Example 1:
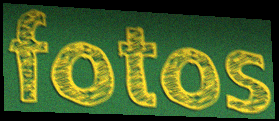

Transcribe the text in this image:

fotos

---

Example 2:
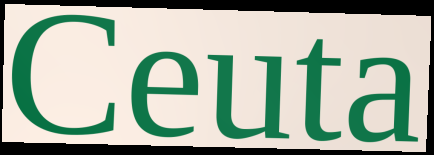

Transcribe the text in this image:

Ceuta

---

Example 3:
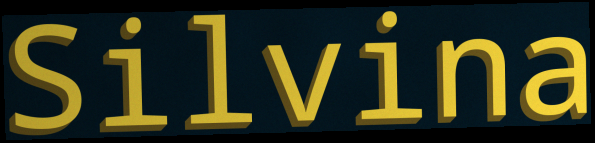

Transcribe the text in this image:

Silvina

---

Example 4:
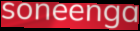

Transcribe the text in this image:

soneenga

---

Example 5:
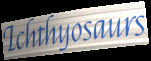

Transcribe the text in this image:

Ichthyosaurs